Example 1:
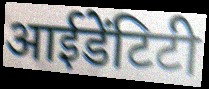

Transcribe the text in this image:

आईडेंटिटी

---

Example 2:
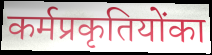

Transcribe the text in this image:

कर्मप्रकृतियोंका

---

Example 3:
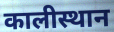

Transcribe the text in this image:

कालीस्थान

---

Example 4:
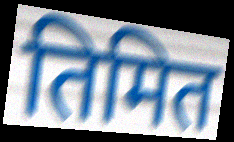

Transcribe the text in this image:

तिमित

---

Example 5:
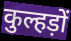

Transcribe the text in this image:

कुल्हड़ों